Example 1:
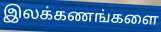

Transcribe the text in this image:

இலக்கணங்களை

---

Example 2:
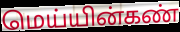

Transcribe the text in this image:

மெய்யின்கண்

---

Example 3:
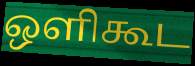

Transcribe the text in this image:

ஒளிகூட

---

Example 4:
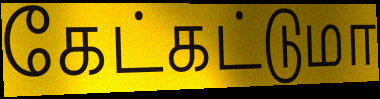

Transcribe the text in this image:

கேட்கட்டுமா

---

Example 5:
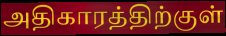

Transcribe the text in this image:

அதிகாரத்திற்குள்